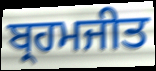
ਬ੍ਰਹਮਜੀਤ